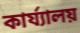
কাৰ্য্যালয়